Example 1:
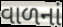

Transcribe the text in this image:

વાળનાં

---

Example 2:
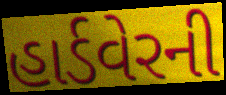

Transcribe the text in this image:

હાર્ડવેરની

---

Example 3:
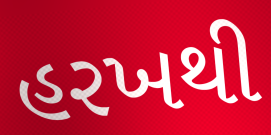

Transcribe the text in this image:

હરખથી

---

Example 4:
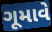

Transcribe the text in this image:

ગૂમાવે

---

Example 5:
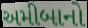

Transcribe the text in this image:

અમીબાનો